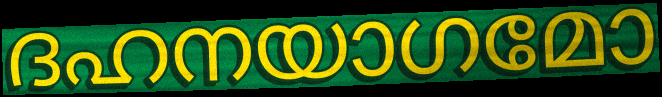
ദഹനയാഗമോ